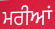
ਮਰੀਆਂ